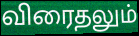
விரைதலும்